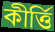
কীর্ত্তি